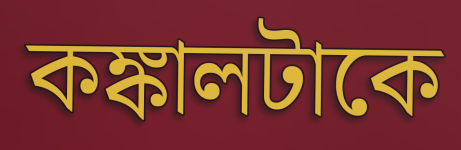
কঙ্কালটাকে